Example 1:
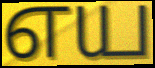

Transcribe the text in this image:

எய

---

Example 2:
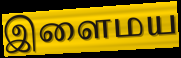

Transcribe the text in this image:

இளைமய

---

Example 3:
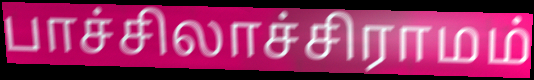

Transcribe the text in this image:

பாச்சிலாச்சிராமம்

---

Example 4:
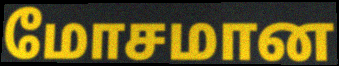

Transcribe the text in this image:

மோசமான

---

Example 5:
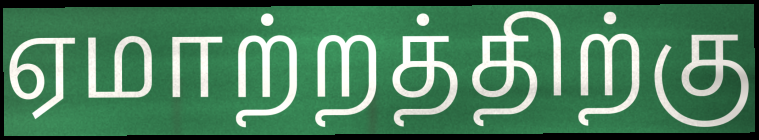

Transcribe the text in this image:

ஏமாற்றத்திற்கு